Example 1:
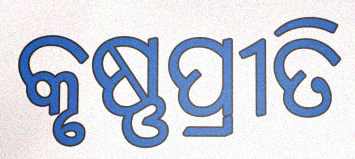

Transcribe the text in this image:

କୃଷ୍ଣପ୍ରୀତି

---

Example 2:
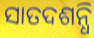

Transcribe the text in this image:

ସାତଦଶନ୍ଧି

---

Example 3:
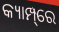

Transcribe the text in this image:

କ୍ୟାମ୍ପ୍‌ରେ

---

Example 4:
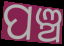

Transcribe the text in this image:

ପଞ୍ଚ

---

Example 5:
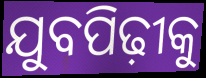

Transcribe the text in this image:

ଯୁବପିଢ଼ୀକୁ